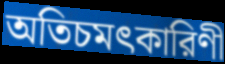
অতিচমৎকারিণী